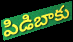
పిడిబాకు